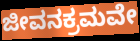
ಜೀವನಕ್ರಮವೇ